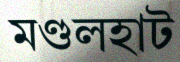
মণ্ডলহাট